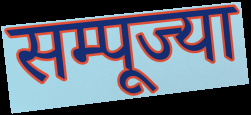
सम्पूज्या